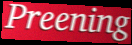
Preening